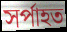
সর্পাহত